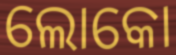
ଲୋକୋ